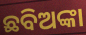
ଛବିଅଙ୍କା